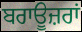
ਬਰਾਊਜ਼ਰਾਂ